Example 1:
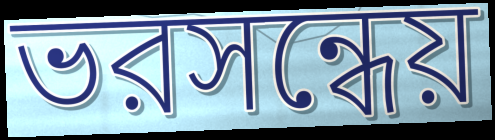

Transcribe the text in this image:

ভরসন্ধেয়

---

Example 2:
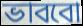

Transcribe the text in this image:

ভাববো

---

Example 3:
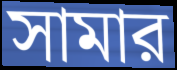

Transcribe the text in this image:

সামার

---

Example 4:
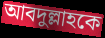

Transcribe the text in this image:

আবদুল্লাহকে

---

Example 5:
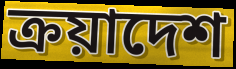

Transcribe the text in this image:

ক্রয়াদেশ